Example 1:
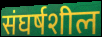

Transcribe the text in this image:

संघर्षशील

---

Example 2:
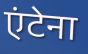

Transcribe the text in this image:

एंटेना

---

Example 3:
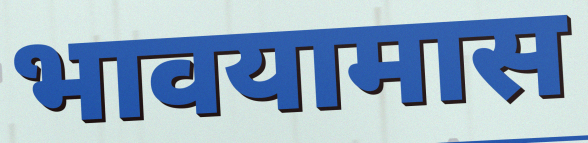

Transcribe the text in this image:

भावयामास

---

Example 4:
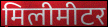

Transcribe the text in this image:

मिलीमीटर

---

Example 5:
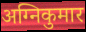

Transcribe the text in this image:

अग्निकुमार